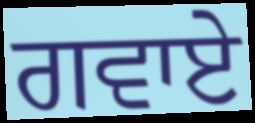
ਗਵਾਏ